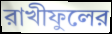
রাখীফুলের